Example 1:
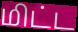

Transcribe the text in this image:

மிட்ட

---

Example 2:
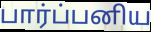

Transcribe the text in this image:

பார்ப்பனிய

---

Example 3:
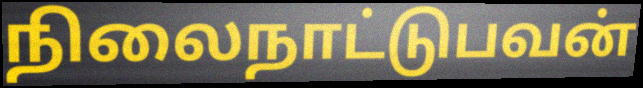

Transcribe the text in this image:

நிலைநாட்டுபவன்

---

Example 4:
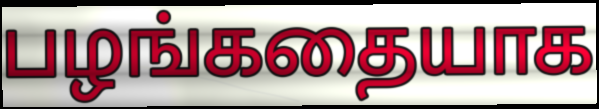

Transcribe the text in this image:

பழங்கதையாக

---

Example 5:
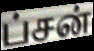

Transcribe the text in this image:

ப்சன்